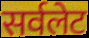
सर्वलेट